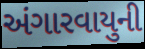
અંગારવાયુની